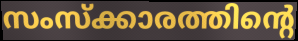
സംസ്ക്കാരത്തിന്റെ